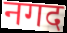
नगद